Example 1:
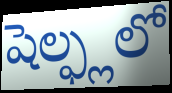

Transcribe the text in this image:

షెల్ఫ్లలో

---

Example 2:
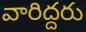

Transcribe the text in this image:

వారిద్దరు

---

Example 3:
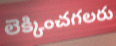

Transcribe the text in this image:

లెక్కించగలరు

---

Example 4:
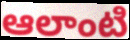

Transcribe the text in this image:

ఆలాంటి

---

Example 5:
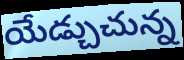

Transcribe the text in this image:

యేడ్చుచున్న